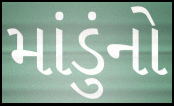
માંડુંનો